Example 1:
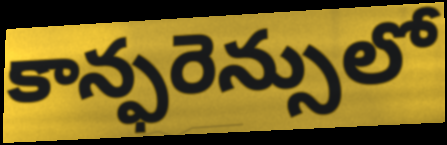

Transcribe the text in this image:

కాన్ఫరెన్సులో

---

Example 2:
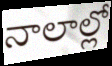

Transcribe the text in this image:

నాలాల్లో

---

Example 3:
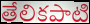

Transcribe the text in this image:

తేలికపాటి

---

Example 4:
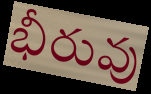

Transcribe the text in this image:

భీరువు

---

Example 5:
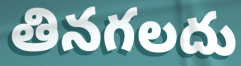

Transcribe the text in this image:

తినగలదు